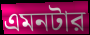
এমনটার